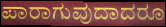
ಪಾರಾಗುವುದಾದರೂ